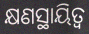
କ୍ଷଣସ୍ଥାୟିତ୍ୱ